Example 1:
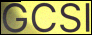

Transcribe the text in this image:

GCSI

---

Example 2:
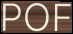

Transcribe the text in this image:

POF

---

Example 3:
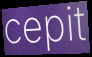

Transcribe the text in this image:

cepit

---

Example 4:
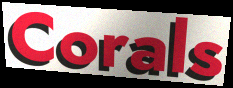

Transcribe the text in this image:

Corals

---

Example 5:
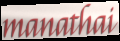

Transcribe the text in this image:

manathai